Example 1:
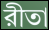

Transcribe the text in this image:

রীতা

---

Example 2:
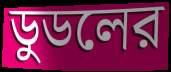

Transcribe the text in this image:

ডুডলের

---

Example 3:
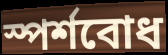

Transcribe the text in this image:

স্পর্শবোধ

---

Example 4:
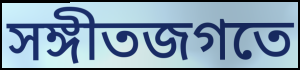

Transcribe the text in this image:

সঙ্গীতজগতে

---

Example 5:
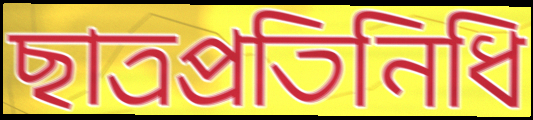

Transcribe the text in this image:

ছাত্রপ্রতিনিধি